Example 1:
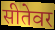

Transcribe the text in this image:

सीतेवर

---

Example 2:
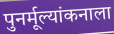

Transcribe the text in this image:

पुनर्मूल्यांकनाला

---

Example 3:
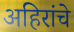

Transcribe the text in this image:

अहिरांचे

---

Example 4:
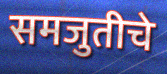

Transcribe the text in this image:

समजुतीचे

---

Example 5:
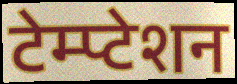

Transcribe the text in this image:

टेम्प्टेशन